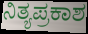
ನಿತ್ಯಪ್ರಕಾಶ